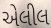
એલીલ